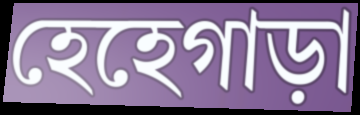
হেহেগাড়া